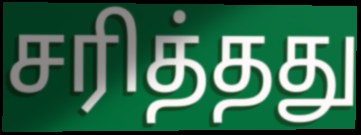
சரித்தது